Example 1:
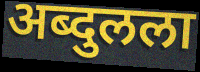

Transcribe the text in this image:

अब्दुलला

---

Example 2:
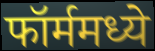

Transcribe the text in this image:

फॉर्ममध्ये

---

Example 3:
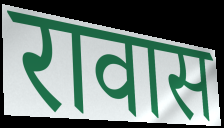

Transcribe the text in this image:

रावास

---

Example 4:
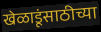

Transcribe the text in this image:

खेळाडूंसाठीच्या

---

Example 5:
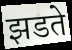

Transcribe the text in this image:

झडते